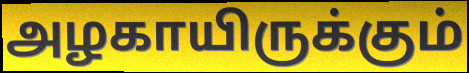
அழகாயிருக்கும்